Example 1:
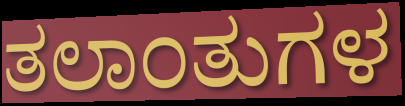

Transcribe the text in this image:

ತಲಾಂತುಗಳ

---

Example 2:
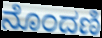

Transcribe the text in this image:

ನೊಂದಣಿ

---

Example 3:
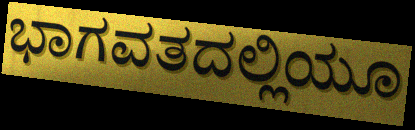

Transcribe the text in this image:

ಭಾಗವತದಲ್ಲಿಯೂ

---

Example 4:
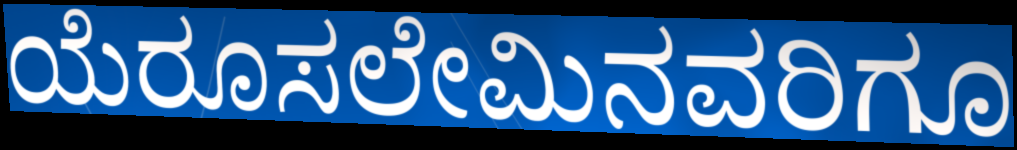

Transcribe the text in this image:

ಯೆರೂಸಲೇಮಿನವರಿಗೂ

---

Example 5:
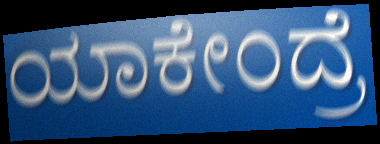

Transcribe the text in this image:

ಯಾಕೇಂದ್ರೆ